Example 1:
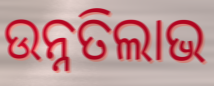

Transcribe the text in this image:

ଉନ୍ନତିଲାଭ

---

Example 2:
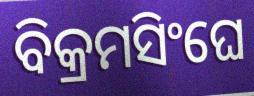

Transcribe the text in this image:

ବିକ୍ରମସିଂଘେ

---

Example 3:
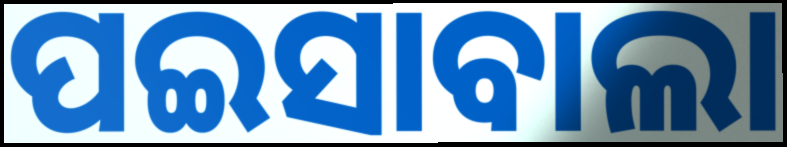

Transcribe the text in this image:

ପଇସାବାଲା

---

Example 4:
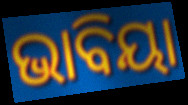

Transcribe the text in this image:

ଭାବିୟା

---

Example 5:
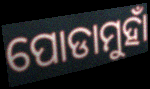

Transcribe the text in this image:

ପୋଡାମୁହାଁ